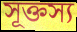
সূক্তস্য